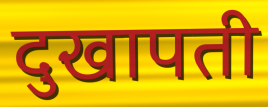
दुखापती